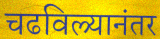
चढविल्यानंतर